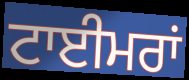
ਟਾਈਮਰਾਂ